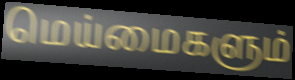
மெய்மைகளும்